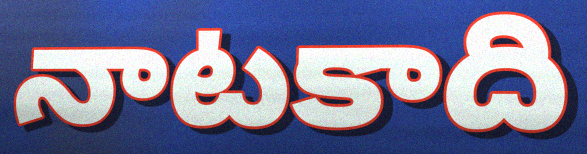
నాటకాది